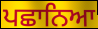
ਪਛਾਨਿਆ